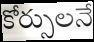
కోర్సులనే